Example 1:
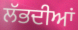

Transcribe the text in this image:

ਲੱਭਦੀਆਂ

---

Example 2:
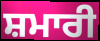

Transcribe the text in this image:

ਸ਼ਮਾਰੀ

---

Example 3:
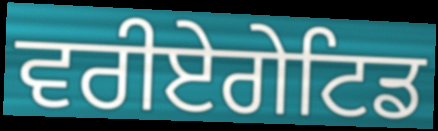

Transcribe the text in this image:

ਵਰੀਏਗੇਟਿਡ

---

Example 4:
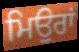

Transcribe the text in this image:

ਮਿਉਰਾਂ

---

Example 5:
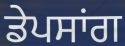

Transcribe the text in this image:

ਡੇਪਸਾਂਗ